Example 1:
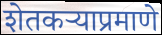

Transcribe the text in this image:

शेतकऱ्याप्रमाणे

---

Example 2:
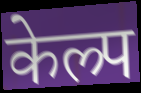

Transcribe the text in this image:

केल्प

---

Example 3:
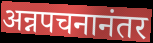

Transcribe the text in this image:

अन्नपचनानंतर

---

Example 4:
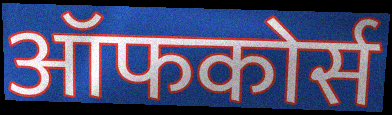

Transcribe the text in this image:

ऑफकोर्स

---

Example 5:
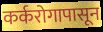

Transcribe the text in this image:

कर्करोगापासून